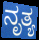
ನೃತ್ಯ